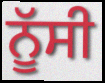
ਨੂੱਸੀ